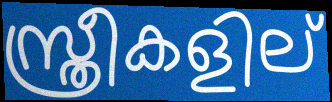
സ്ത്രീകളില്